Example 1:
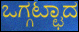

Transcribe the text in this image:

ಒಗ್ಗಟ್ಟಾದ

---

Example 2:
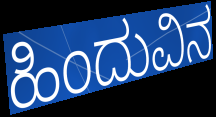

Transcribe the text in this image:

ಹಿಂದುವಿನ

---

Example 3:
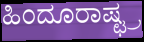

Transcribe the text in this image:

ಹಿಂದೂರಾಷ್ಟ್ರ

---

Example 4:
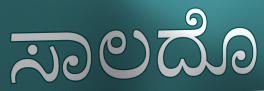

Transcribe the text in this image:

ಸಾಲದೊ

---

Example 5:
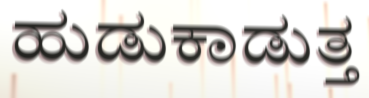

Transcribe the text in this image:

ಹುಡುಕಾಡುತ್ತ